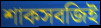
শাকসবজিই